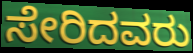
ಸೇರಿದವರು